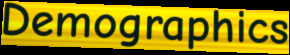
Demographics